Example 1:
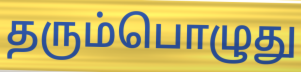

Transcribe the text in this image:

தரும்பொழுது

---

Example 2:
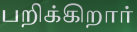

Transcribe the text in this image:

பறிக்கிறார்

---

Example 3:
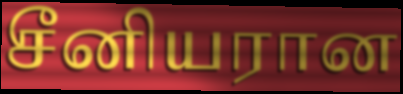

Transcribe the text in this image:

சீனியரான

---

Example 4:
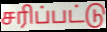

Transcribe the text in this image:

சரிப்பட்டு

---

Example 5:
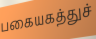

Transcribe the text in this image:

பகையகத்துச்